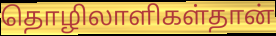
தொழிலாளிகள்தான்